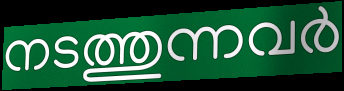
നടത്തുന്നവർ